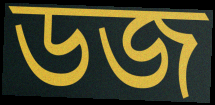
ডজ